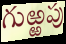
గుఱ్ఱపు